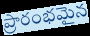
ప్రారంభమైన